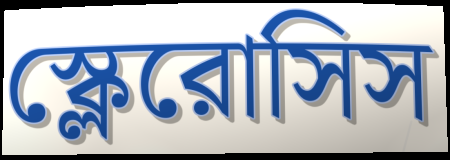
স্ক্লেরোসিস